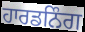
ਹਾਰਡਨਿੰਗ